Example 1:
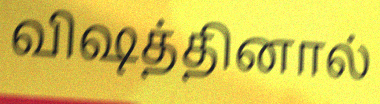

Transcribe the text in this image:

விஷத்தினால்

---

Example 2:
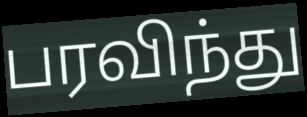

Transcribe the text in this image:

பரவிந்து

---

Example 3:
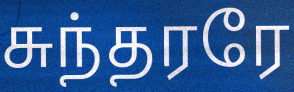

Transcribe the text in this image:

சுந்தரரே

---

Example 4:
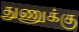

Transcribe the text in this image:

துணுக்கு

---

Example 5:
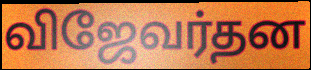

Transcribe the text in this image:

விஜேவர்தன